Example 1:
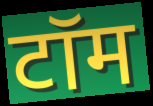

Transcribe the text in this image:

टॉम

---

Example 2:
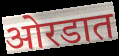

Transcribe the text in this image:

ओरडात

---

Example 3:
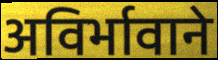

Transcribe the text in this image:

अविर्भावाने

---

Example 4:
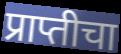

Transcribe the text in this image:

प्राप्तीचा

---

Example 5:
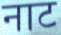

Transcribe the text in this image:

नाट